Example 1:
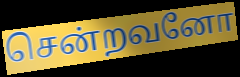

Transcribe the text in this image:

சென்றவனோ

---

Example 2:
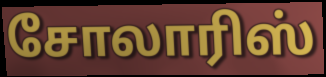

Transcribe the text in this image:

சோலாரிஸ்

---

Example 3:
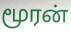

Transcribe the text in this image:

மூரன்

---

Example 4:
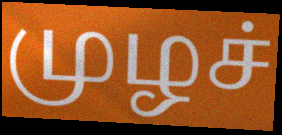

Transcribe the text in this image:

முழச்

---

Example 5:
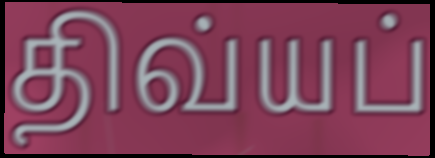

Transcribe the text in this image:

திவ்யப்